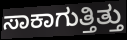
ಸಾಕಾಗುತ್ತಿತ್ತು